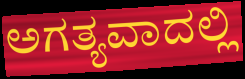
ಅಗತ್ಯವಾದಲ್ಲಿ